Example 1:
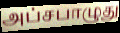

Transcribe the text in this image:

அப்சபாழுது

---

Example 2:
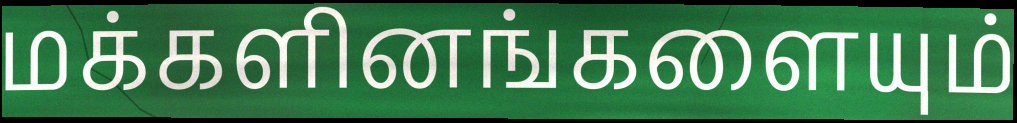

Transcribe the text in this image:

மக்களினங்களையும்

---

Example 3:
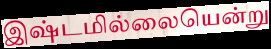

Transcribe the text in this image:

இஷ்டமில்லையென்று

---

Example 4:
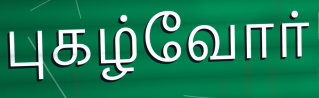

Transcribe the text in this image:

புகழ்வோர்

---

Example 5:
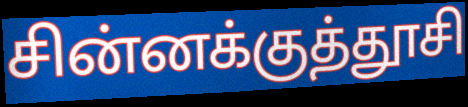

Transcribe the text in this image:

சின்னக்குத்தூசி